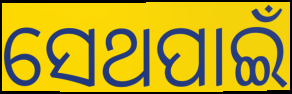
ସେଥପାଇଁ